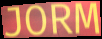
JORM